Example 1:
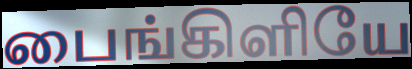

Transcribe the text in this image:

பைங்கிளியே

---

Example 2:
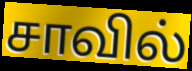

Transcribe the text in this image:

சாவில்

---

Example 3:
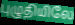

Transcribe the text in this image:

புழுதியிலே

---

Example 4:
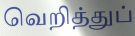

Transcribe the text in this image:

வெறித்துப்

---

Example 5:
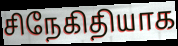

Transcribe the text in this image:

சிநேகிதியாக